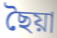
ছৈয়া